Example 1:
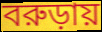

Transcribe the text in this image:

বরুড়ায়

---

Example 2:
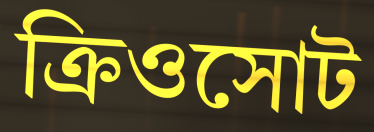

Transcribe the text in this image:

ক্রিওসোট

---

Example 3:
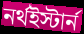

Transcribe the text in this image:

নর্থইস্টার্ন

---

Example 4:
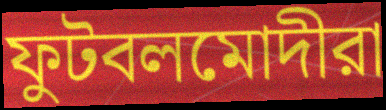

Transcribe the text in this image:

ফুটবলমোদীরা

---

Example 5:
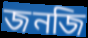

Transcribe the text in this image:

জনজি